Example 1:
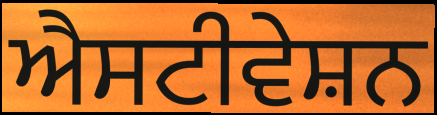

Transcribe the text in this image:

ਐਸਟੀਵੇਸ਼ਨ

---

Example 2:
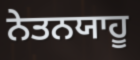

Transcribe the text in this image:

ਨੇਤਨਯਾਹੂ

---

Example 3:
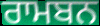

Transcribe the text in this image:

ਰਾਮਬਨ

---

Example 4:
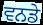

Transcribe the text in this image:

ਵਨਡੇ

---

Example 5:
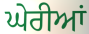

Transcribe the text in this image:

ਘੇਰੀਆਂ